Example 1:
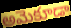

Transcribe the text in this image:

అమెకూడా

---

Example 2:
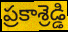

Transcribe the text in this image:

ప్రకాశ్రెడ్డి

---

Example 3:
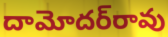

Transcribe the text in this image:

దామోదర్‌రావు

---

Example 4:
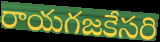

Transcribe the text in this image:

రాయగజకేసరి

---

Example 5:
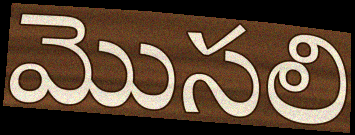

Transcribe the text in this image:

మొసలి